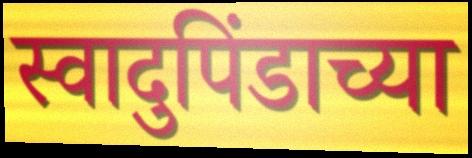
स्वादुपिंडाच्या